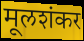
मूलशंकर